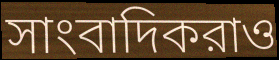
সাংবাদিকরাও